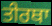
ਤੀਰਥਾ